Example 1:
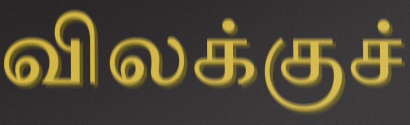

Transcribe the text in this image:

விலக்குச்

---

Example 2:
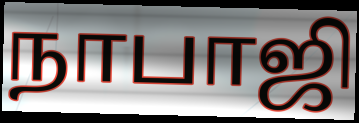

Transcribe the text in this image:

நாபாஜி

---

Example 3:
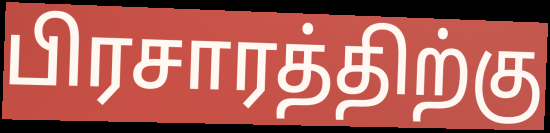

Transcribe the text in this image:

பிரசாரத்திற்கு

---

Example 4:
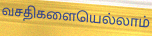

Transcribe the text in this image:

வசதிகளையெல்லாம்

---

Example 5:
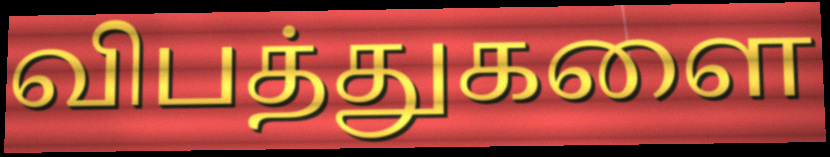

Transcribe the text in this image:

விபத்துகளை